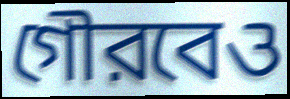
গৌরবেও